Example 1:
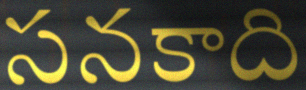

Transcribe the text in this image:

సనకాది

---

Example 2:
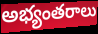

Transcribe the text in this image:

అభ్యంతరాలు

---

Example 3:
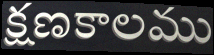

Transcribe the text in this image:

క్షణకాలము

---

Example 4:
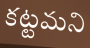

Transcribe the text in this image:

కట్టమని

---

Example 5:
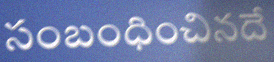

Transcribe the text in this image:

సంబంధించినదే